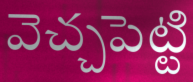
వెచ్చపెట్టి